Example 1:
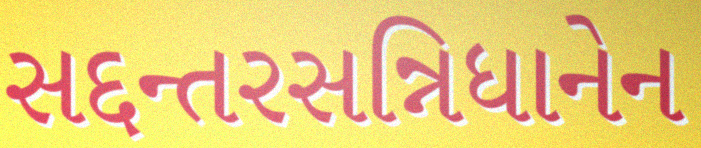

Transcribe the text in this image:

સદ્દન્તરસન્નિધાનેન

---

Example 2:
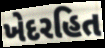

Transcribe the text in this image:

ખેદરહિત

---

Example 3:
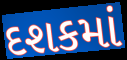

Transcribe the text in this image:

દશકમાં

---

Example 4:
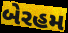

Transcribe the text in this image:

બેરહમ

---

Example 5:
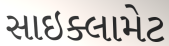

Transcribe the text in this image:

સાઇક્લામેટ